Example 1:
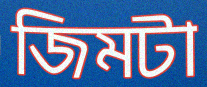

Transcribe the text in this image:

জিমটা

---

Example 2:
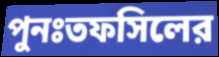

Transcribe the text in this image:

পুনঃতফসিলের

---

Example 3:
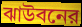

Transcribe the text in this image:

ঝাউবনের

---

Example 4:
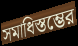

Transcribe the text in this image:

সমাধিস্তম্ভের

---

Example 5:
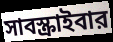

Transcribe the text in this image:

সাবস্ক্রাইবার